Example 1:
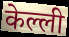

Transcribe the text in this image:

केल्ली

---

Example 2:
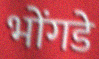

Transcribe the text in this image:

भोंगडे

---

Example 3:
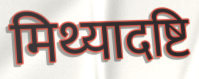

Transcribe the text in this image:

मिथ्यादष्टि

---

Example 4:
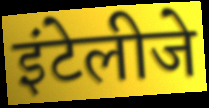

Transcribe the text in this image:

इंटेलीजे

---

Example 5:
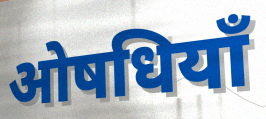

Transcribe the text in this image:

ओषधियाँ